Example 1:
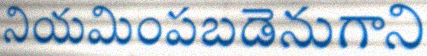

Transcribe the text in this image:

నియమింపబడెనుగాని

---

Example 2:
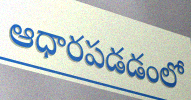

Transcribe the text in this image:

ఆధారపడడంలో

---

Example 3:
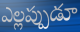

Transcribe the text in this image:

ఎల్లప్పుడూ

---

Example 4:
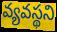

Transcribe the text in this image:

వ్యవస్థని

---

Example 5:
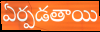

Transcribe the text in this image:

ఏర్పడతాయి